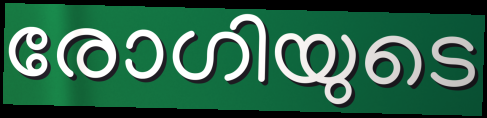
രോഗിയുടെ